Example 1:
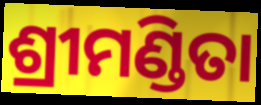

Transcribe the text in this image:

ଶ୍ରୀମଣ୍ଡିତା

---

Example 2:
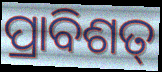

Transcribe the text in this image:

ପ୍ରାବିଶତ୍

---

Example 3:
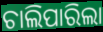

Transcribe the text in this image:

ଚାଲିପାରିଲା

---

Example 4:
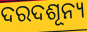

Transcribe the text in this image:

ଦରଦଶୂନ୍ୟ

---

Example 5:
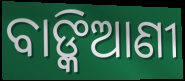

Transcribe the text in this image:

ବାଙ୍କିଆଣୀ